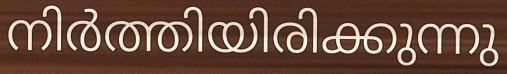
നിർത്തിയിരിക്കുന്നു